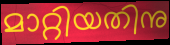
മാറ്റിയതിനു